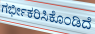
ಗರ್ಭೀಕರಿಸಿಕೊಂಡಿದೆ